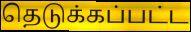
தெடுக்கப்பட்ட